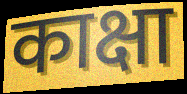
काक्षा